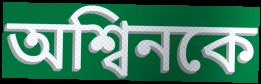
অশ্বিনকে